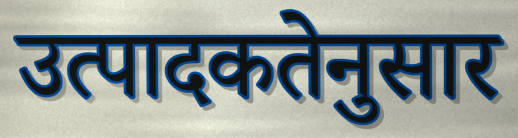
उत्पादकतेनुसार